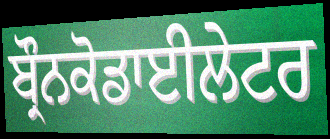
ਬ੍ਰੌਨਕੋਡਾਈਲੇਟਰ